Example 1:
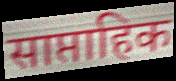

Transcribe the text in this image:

साप्ताहिक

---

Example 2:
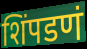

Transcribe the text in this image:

शिंपडणं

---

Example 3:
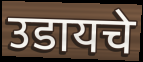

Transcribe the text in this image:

उडायचे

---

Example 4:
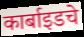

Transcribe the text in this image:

कार्बाइडचे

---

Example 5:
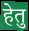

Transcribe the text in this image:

हेतु